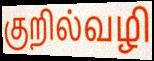
குறில்வழி